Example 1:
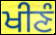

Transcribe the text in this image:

ਖੀਣੰ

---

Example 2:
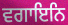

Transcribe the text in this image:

ਵਗਾਇਨਿ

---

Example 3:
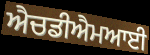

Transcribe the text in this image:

ਐਚਡੀਐਮਆਈ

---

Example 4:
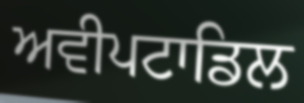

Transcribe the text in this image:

ਅਵੀਪਟਾਡਿਲ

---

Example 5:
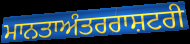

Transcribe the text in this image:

ਮਾਨਤਾਅੰਤਰਰਾਸ਼ਟਰੀ